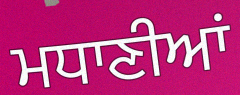
ਮਧਾਣੀਆਂ